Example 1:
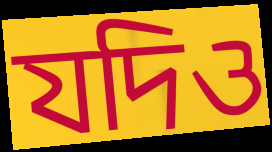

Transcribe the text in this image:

যদিও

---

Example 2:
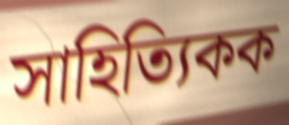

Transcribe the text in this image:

সাহিত্যিকক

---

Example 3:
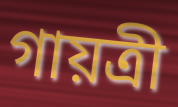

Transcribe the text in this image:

গায়ত্ৰী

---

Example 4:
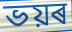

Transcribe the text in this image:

ভয়ৰ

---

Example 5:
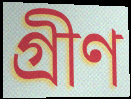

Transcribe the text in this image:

গ্ৰীণ